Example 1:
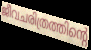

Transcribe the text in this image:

ജീവചരിത്രത്തിന്റെ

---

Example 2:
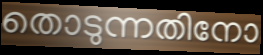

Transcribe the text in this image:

തൊടുന്നതിനോ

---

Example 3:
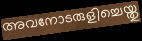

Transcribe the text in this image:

അവനോടരുളിച്ചെയ്തു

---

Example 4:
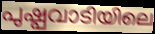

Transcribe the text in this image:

പുഷ്പവാടിയിലെ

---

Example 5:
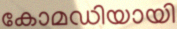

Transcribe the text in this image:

കോമഡിയായി